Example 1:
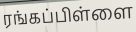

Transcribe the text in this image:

ரங்கப்பிள்ளை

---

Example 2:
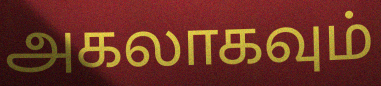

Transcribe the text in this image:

அகலாகவும்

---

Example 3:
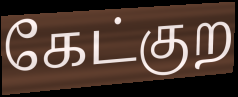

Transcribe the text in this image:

கேட்குற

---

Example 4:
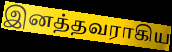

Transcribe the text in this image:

இனத்தவராகிய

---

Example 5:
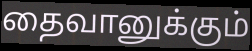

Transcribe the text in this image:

தைவானுக்கும்